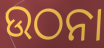
ଉଠନା